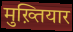
मुख़्तियार